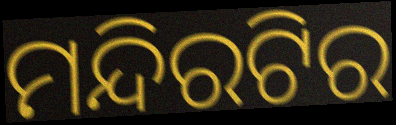
ମନ୍ଦିରଟିର